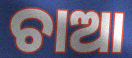
ଚାଆ